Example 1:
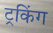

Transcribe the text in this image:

ट्रकिंग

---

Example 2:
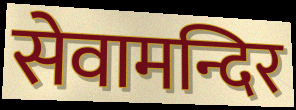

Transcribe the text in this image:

सेवामन्दिर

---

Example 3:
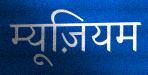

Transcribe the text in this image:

म्यूज़ियम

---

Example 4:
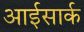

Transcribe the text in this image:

आईसार्क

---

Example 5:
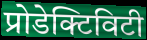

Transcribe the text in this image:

प्रोडेक्टिविटी